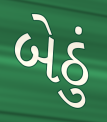
બેઠું